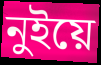
নুইয়ে